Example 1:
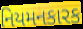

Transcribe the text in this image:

નિયમનકારક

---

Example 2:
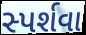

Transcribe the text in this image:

સ્પર્શવા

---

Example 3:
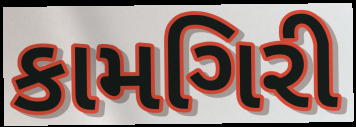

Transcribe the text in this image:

કામગિરી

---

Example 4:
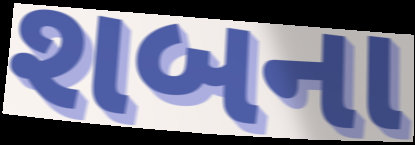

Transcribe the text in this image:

શબના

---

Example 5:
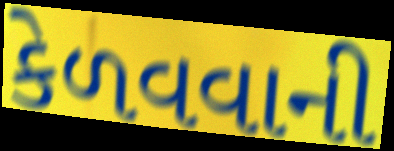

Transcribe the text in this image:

કેળવવાની